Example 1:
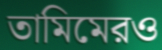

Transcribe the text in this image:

তামিমেরও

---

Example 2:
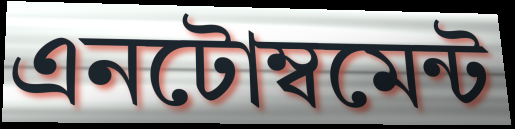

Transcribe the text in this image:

এনটোম্বমেন্ট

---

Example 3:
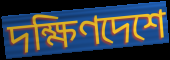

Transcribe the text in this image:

দক্ষিণদেশে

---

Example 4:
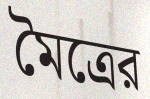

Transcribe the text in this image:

মৈত্রের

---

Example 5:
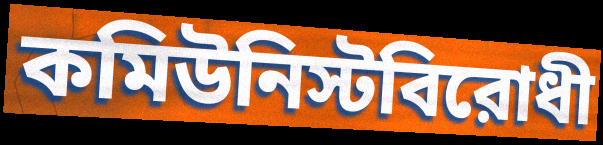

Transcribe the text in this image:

কমিউনিস্টবিরোধী